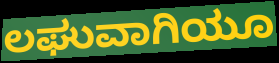
ಲಘುವಾಗಿಯೂ